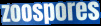
zoospores